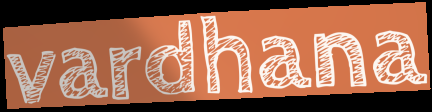
vardhana